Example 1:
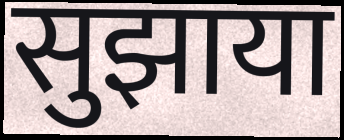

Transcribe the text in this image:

सुझाया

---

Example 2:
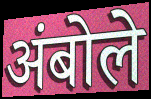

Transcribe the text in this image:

अंबोले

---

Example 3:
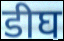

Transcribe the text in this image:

डीघ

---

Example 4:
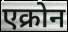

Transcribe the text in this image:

एक्रोन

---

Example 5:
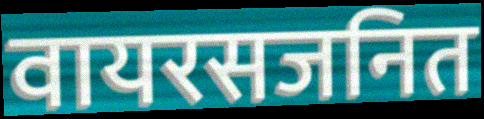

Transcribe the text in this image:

वायरसजनित